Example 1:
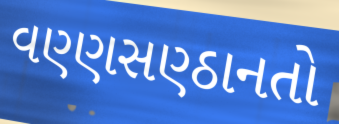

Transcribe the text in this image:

વણ્ણસણ્ઠાનતો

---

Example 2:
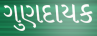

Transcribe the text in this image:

ગુણદાયક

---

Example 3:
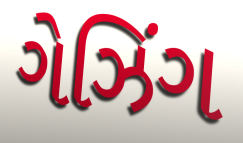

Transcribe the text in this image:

ગેઝિંગ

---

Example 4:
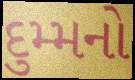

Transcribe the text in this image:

દુમ્મનો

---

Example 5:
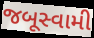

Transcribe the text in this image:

જબૂસ્વામી